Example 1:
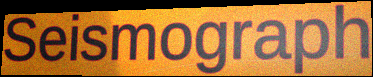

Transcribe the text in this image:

Seismograph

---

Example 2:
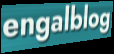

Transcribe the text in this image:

engalblog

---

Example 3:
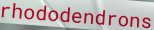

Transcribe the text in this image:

rhododendrons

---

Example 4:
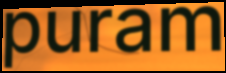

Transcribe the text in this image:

puram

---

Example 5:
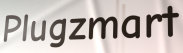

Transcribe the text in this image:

Plugzmart